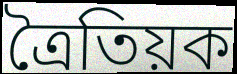
ত্ৰৈতিয়ক